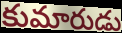
కుమారుడు